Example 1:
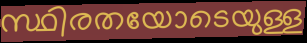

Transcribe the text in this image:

സ്ഥിരതയോടെയുള്ള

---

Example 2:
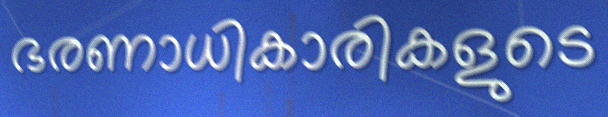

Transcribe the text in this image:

ഭരണാധികാരികളുടെ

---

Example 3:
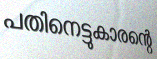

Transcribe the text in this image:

പതിനെട്ടുകാരന്റെ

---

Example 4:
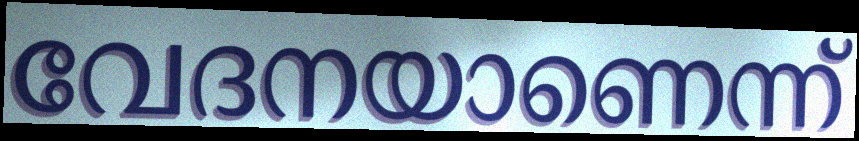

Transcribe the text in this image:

വേദനയാണെന്ന്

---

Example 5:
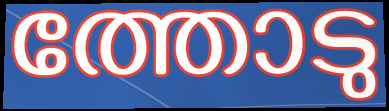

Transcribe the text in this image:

ത്തോടു